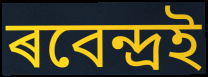
ৰবেন্দ্ৰই